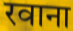
रवाना